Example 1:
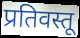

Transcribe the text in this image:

प्रतिवस्तू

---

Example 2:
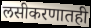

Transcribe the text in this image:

लसीकरणातही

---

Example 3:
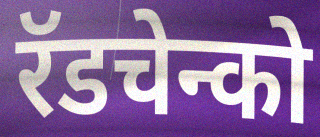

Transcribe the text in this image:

रॅडचेन्को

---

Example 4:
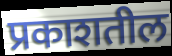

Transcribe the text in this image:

प्रकाशतील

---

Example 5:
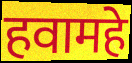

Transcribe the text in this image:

हवामहे